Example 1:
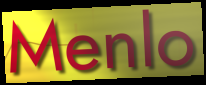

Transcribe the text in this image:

Menlo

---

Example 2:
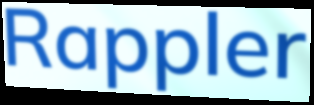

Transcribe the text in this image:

Rappler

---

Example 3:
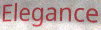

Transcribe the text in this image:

Elegance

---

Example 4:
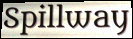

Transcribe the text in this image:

Spillway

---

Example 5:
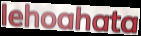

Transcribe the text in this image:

Iehoahata